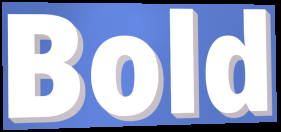
Bold